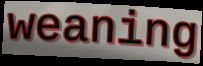
weaning